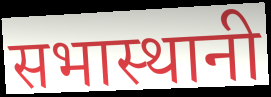
सभास्थानी